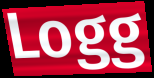
Logg